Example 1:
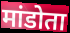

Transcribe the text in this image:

मांडोता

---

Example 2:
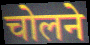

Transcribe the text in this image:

चोलने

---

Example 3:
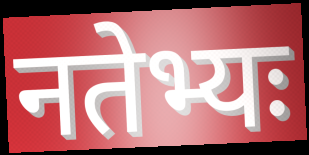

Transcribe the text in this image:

नतेभ्यः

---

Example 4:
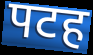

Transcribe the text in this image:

पटह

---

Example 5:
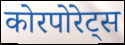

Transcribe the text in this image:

कोरपोरेट्स